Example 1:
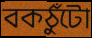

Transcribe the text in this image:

বকঠুঁটো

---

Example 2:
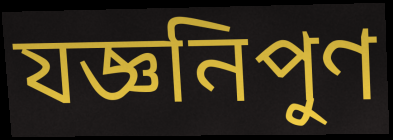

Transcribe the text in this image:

যজ্ঞনিপুণ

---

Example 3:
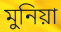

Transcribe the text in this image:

মুনিয়া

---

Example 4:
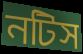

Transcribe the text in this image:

নটিস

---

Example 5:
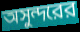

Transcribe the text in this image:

অসুন্দরের